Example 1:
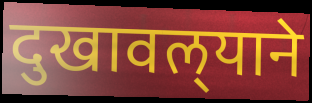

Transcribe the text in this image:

दुखावल्याने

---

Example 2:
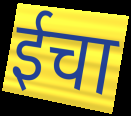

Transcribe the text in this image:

ईचा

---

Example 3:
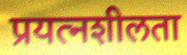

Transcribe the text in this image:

प्रयत्नशीलता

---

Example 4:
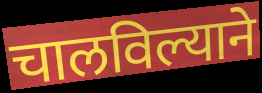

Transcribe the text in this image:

चालविल्याने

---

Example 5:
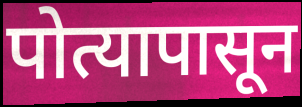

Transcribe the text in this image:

पोत्यापासून